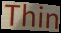
Thin